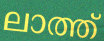
ലാത്ത്